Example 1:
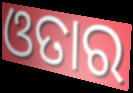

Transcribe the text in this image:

ଓତାର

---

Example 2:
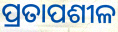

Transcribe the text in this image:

ପ୍ରତାପଶୀଳ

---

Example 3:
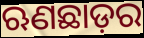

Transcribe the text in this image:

ଋଣଛାଡ଼ର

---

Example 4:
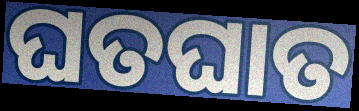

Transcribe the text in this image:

ଘତଘାତ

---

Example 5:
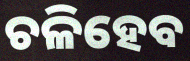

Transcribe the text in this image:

ଚଳିହେବ